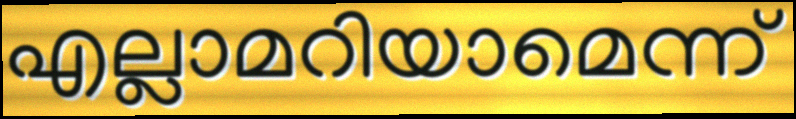
എല്ലാമറിയാമെന്ന്